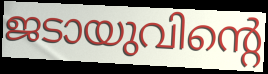
ജടായുവിന്റെ